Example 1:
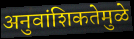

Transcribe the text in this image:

अनुवांशिकतेमुळे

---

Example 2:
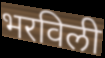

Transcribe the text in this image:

भरविली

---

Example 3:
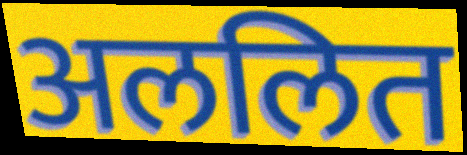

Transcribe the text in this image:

अललित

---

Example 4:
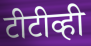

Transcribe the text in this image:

टीटीव्ही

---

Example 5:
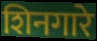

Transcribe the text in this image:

शिनगारे